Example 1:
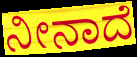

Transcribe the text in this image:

ನೀನಾದೆ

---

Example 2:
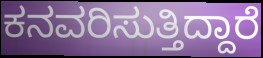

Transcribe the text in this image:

ಕನವರಿಸುತ್ತಿದ್ದಾರೆ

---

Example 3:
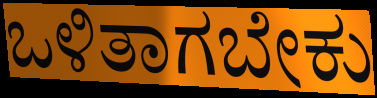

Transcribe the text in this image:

ಒಳಿತಾಗಬೇಕು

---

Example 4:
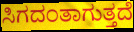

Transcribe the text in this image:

ಸಿಗದಂತಾಗುತ್ತದೆ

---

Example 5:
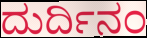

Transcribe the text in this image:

ದುರ್ದಿನಂ